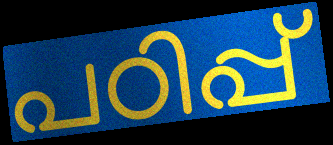
പഠിപ്പ്